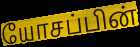
யோசப்பின்